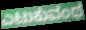
ಎಟುಕುವಂಥ